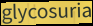
glycosuria